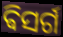
ଵିସର୍ଗ